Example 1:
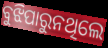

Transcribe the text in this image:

ବୁଝିପାରୁନଥିଲେ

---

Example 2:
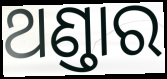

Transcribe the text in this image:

ଥଣ୍ଡାର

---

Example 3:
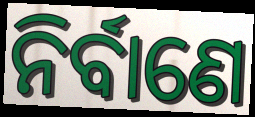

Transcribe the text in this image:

ନିର୍ବାଣେ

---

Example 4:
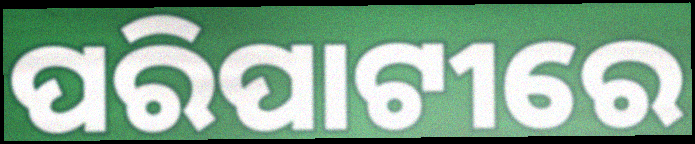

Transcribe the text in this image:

ପରିପାଟୀରେ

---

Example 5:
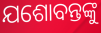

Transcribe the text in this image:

ଯଶୋବନ୍ତଙ୍କୁ